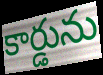
కార్డును